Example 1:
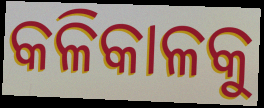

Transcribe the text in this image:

କଳିକାଳକୁ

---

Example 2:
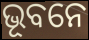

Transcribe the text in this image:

ଭୂବନେ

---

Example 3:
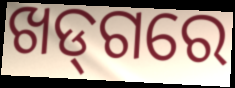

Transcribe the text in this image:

ଖଡ୍‌ଗରେ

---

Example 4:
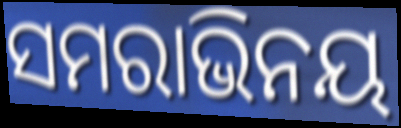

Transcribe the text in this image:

ସମରାଭିନୟ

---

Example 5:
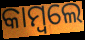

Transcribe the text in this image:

କାମ୍ବଲେ